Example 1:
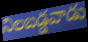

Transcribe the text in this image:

నిలబడ్డవాడు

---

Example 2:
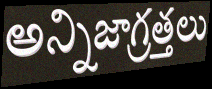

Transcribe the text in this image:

అన్నిజాగ్రత్తలు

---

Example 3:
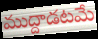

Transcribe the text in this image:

ముద్దాడటమే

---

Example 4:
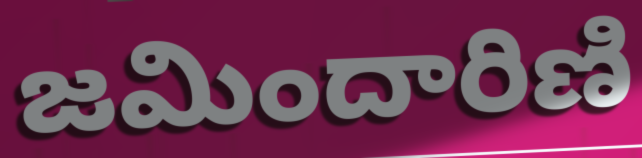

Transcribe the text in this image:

జమిందారిణి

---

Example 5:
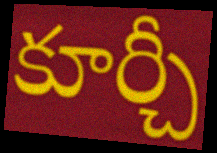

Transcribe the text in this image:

కూర్చీ